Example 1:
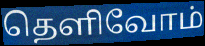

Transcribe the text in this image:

தெளிவோம்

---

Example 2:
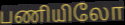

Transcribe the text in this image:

பணியிலோ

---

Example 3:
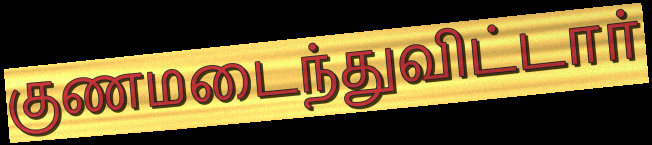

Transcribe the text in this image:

குணமடைந்துவிட்டார்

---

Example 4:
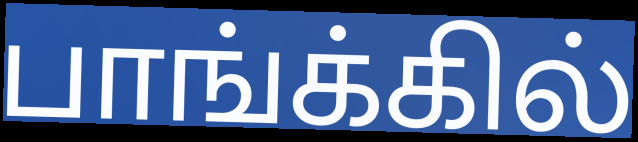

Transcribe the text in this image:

பாங்க்கில்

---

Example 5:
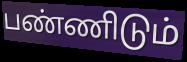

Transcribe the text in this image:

பண்ணிடும்